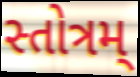
સ્તોત્રમ્